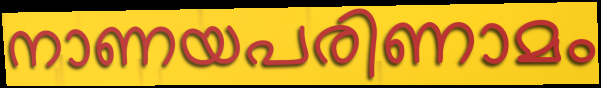
നാണയപരിണാമം